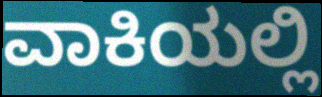
ವಾಕಿಯಲ್ಲಿ